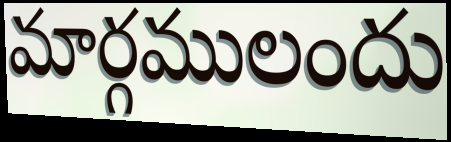
మార్గములందు